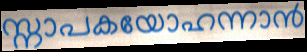
സ്നാപകയോഹന്നാൻ